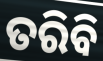
ତରିବି